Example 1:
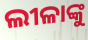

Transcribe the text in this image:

ଲୀଳାଙ୍କୁ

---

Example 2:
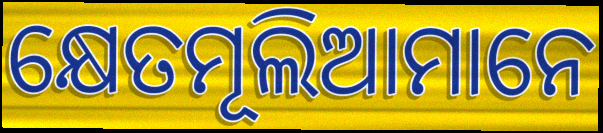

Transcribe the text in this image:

କ୍ଷେତମୂଲିଆମାନେ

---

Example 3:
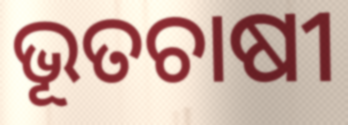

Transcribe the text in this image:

ଭୂତଚାଷୀ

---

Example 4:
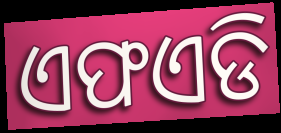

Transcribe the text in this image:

ଏଫଏଡି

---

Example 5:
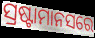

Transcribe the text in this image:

ସ୍ରଷ୍ଟାମାନସରେ